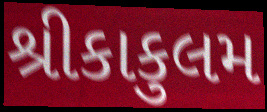
શ્રીકાકુલમ